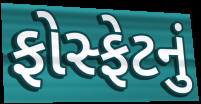
ફોસ્ફેટનું